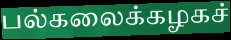
பல்கலைக்கழகச்